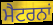
ਮੈਟਰਨਾਂ